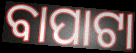
ବାପାଟା